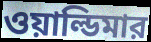
ওয়াল্ডিমার